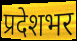
प्रदेशभर